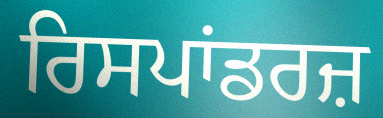
ਰਿਸਪਾਂਡਰਜ਼